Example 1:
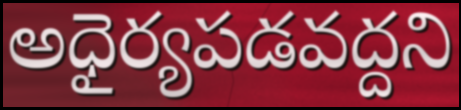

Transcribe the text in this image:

అధైర్యపడవద్దని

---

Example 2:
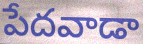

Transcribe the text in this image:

పేదవాడా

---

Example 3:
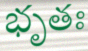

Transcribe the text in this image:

భృతః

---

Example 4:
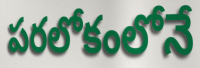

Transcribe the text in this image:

పరలోకంలోనే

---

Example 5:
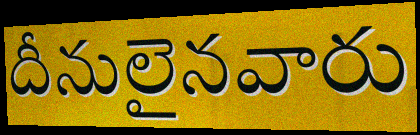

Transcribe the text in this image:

దీనులైనవారు